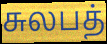
சுலபத்